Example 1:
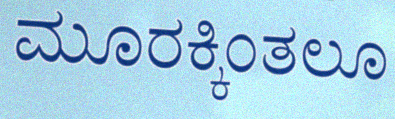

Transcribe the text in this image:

ಮೂರಕ್ಕಿಂತಲೂ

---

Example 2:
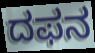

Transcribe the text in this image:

ದಫನ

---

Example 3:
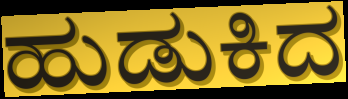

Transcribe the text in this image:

ಹುಡುಕಿದ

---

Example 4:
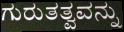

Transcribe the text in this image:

ಗುರುತತ್ವವನ್ನು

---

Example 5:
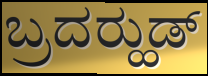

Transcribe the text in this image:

ಬ್ರದರ್‍ಹುಡ್